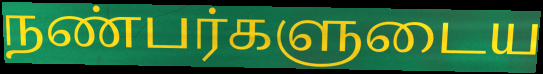
நண்பர்களுடைய